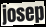
josep